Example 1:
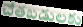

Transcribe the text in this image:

చేతబడులకు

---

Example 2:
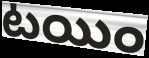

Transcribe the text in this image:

టయిం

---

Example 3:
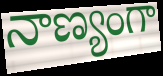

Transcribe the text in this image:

నాణ్యంగా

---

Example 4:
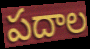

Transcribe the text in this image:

పదాల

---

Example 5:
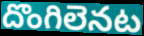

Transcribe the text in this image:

దొంగిలెనట